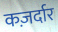
कज़र्दार